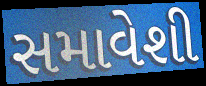
સમાવેશી